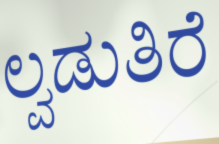
ಲ್ವಡುತಿರೆ